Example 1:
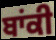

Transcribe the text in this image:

ਬਾਂਕੀ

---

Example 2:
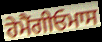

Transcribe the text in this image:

ਹੇਮੈਂਗੀਓਮਾਸ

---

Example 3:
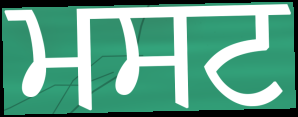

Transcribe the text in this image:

ਮਸਟ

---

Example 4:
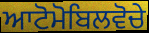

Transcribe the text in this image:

ਆਟੋਮੋਬਿਲਵੋਚੇ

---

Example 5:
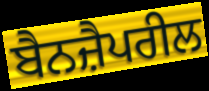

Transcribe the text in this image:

ਬੈਨਜ਼ੈਪਰੀਲ